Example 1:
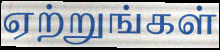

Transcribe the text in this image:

ஏற்றுங்கள்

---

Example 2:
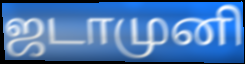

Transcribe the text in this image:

ஜடாமுனி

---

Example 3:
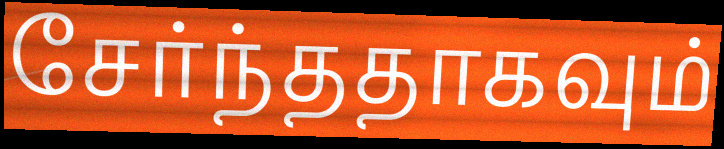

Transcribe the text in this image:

சேர்ந்ததாகவும்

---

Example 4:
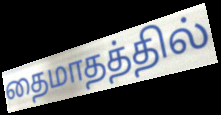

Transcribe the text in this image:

தைமாதத்தில்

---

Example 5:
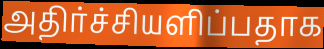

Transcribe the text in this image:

அதிர்ச்சியளிப்பதாக